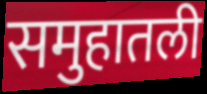
समुहातली